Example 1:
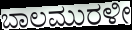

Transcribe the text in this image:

ಬಾಲಮುರಳೀ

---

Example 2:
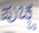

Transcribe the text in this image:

ಪುಚ್ಚ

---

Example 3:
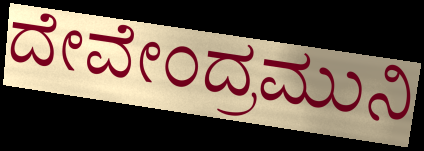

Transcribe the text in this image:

ದೇವೇಂದ್ರಮುನಿ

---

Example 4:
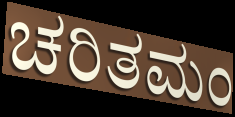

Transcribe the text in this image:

ಚರಿತಮಂ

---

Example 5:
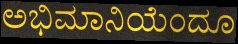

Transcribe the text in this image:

ಅಭಿಮಾನಿಯೆಂದೂ